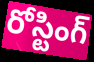
రోస్టింగ్